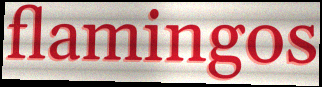
flamingos